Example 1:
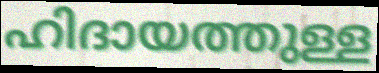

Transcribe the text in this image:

ഹിദായത്തുള്ള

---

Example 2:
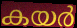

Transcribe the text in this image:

കയർ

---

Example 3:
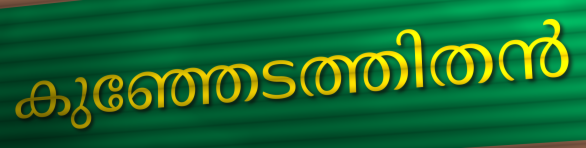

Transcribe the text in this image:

കുഞ്ഞേടത്തിതൻ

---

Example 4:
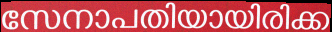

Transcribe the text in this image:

സേനാപതിയായിരിക്ക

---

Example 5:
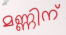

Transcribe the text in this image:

മണ്ണിന്